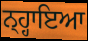
ਨ੍ਹ੍ਹਾਇਆ